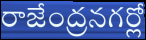
రాజేంద్రనగర్లో